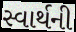
સ્વાર્થની